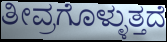
ತೀವ್ರಗೊಳ್ಳುತ್ತದೆ